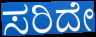
ಸರಿದೇ